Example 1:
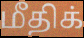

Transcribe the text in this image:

மீதிக்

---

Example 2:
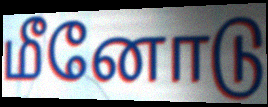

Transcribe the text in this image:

மீனோடு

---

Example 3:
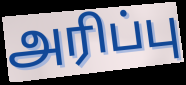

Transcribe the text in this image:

அரிப்பு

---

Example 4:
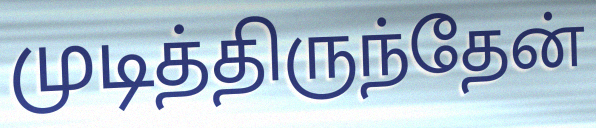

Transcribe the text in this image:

முடித்திருந்தேன்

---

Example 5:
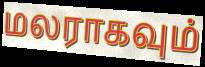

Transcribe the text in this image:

மலராகவும்